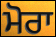
ਮੋਰਾ